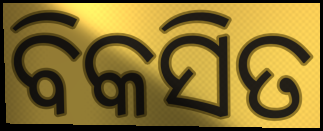
ବିକସିତ